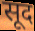
सूद